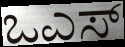
ಒಎಸ್